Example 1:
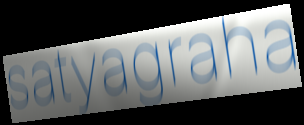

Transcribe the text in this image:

satyagraha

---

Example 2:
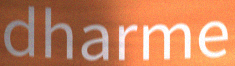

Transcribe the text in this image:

dharme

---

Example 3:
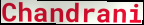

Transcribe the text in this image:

Chandrani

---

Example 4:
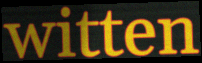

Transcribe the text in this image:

witten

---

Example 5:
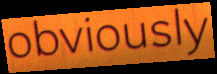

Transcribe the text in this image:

obviously